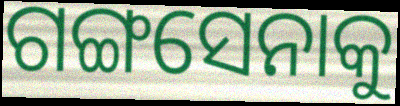
ଗଙ୍ଗସେନାକୁ